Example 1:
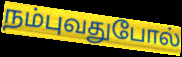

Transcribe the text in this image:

நம்புவதுபோல்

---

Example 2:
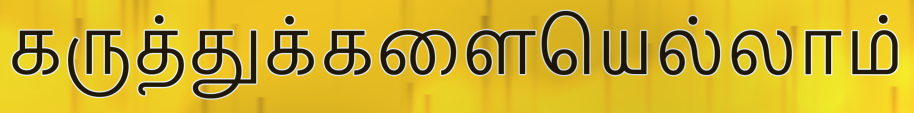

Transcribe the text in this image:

கருத்துக்களையெல்லாம்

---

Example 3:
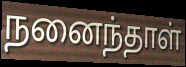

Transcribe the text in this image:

நனைந்தாள்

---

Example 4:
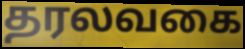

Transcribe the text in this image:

தரலவகை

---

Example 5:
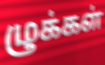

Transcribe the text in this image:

ழுக்கள்